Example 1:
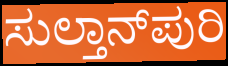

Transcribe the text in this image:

ಸುಲ್ತಾನ್‌ಪುರಿ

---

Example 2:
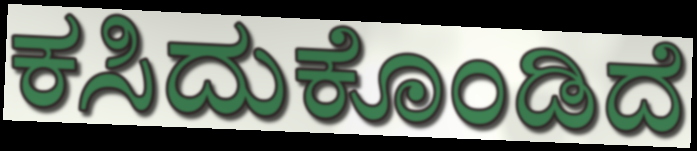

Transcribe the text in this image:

ಕಸಿದುಕೊಂಡಿದೆ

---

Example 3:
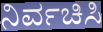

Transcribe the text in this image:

ನಿರ್ವಚಿಸಿ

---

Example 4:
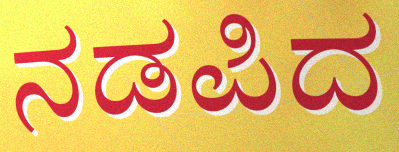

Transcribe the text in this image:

ನಡಪಿದ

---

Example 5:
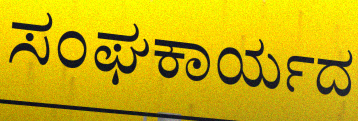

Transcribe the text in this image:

ಸಂಘಕಾರ್ಯದ